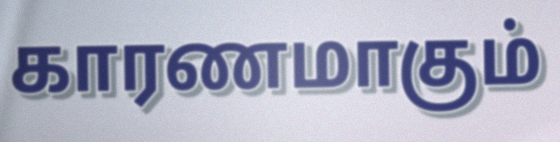
காரணமாகும்